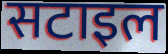
सटाइल